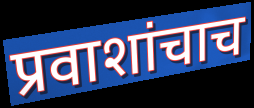
प्रवाशांचाच